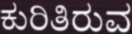
ಕುರಿತಿರುವ